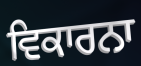
ਵਿਕਾਰਨਾ